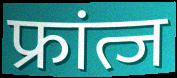
फ्रांत्ज